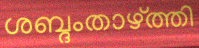
ശബ്ദംതാഴ്ത്തി